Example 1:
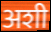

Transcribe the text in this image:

अशी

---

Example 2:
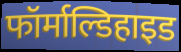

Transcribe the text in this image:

फॉर्माल्डिहाइड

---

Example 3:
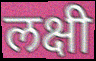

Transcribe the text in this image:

लक्षी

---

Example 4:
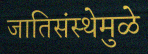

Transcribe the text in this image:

जातिसंस्थेमुळे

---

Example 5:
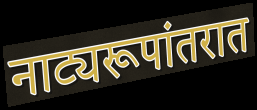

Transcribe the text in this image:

नाट्यरूपांतरात